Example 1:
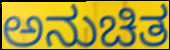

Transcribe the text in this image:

ಅನುಚಿತ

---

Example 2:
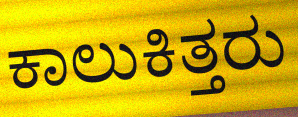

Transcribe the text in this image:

ಕಾಲುಕಿತ್ತರು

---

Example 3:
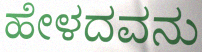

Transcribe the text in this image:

ಹೇಳದವನು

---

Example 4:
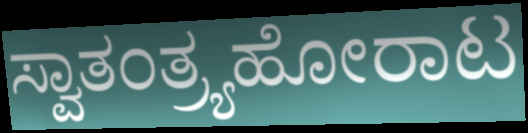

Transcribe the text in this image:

ಸ್ವಾತಂತ್ರ್ಯಹೋರಾಟ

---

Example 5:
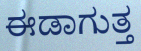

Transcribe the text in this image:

ಈಡಾಗುತ್ತ